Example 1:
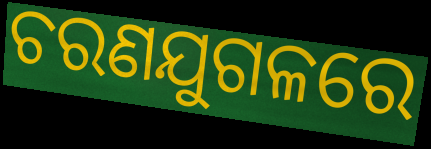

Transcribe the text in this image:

ଚରଣଯୁଗଳରେ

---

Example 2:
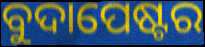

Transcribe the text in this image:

ବୁଦାପେଷ୍ଟର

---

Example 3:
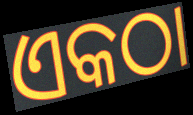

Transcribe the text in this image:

ଏକଠା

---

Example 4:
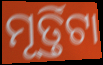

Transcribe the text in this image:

ମୂର୍ତ୍ତିଟା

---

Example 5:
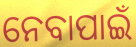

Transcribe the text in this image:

ନେବାପାଇଁ